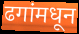
ढगांमधून